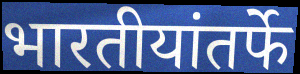
भारतीयांतर्फे